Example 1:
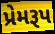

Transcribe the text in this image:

પ્રેમરૂપ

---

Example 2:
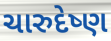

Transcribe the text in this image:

ચારુદેષ્ણ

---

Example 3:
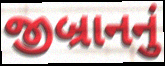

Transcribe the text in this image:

જીબ્રાનનું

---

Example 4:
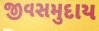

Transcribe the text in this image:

જીવસમુદાય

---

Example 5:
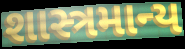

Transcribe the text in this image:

શાસ્ત્રમાન્ય